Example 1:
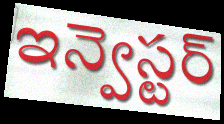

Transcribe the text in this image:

ఇన్వెస్టర్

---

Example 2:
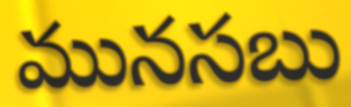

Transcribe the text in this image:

మునసబు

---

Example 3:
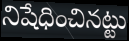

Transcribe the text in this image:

నిషేధించినట్టు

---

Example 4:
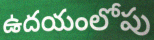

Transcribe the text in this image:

ఉదయంలోపు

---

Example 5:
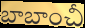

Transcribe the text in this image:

బాబాంచీ